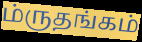
ம்ருதங்கம்